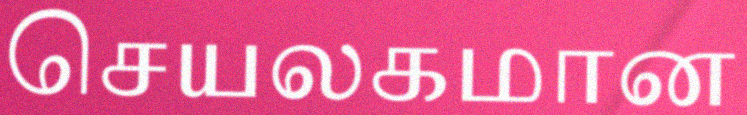
செயலகமான